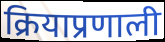
क्रियाप्रणाली